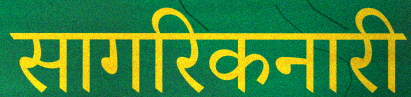
सागरिकनारी